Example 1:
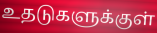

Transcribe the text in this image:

உதடுகளுக்குள்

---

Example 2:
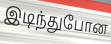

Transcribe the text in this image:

இடிந்துபோன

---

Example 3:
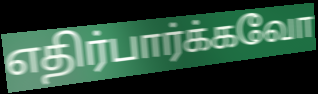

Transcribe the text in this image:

எதிர்பார்க்கவோ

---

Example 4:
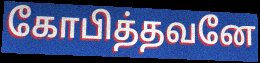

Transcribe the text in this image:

கோபித்தவனே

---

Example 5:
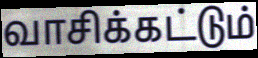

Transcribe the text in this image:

வாசிக்கட்டும்